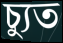
চ্যুত